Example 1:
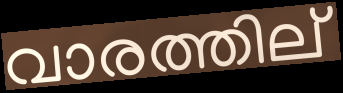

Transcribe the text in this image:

വാരത്തില്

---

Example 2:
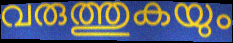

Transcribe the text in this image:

വരുത്തുകയും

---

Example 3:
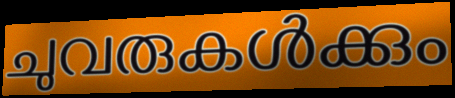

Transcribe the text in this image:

ചുവരുകൾക്കും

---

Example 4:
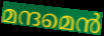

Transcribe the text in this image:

മന്ദമെൻ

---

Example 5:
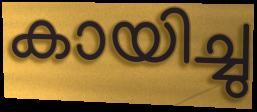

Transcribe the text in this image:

കായിച്ചു